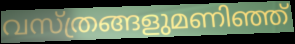
വസ്ത്രങ്ങളുമണിഞ്ഞ്